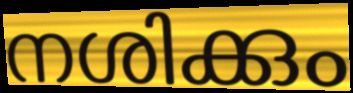
നശിക്കും